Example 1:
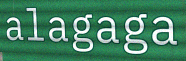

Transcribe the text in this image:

alagaga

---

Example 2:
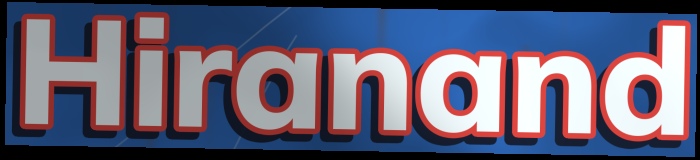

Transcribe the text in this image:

Hiranand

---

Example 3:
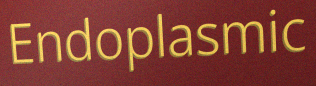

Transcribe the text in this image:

Endoplasmic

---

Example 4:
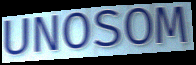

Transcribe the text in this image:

UNOSOM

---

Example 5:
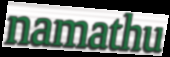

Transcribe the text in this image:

namathu